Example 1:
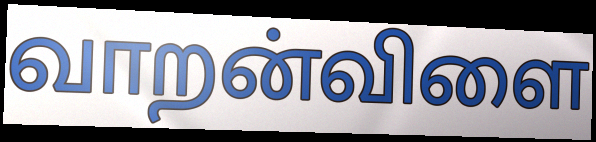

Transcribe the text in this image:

வாறன்விளை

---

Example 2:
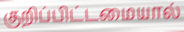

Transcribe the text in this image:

குறிப்பிட்டமையால்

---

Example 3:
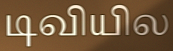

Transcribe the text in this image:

டிவியில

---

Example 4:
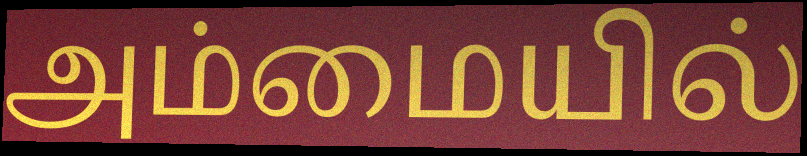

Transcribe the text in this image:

அம்மையில்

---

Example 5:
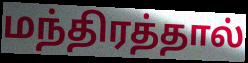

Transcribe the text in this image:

மந்திரத்தால்